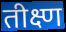
तीक्ष्ण